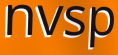
nvsp